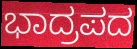
ಭಾದ್ರಪದ